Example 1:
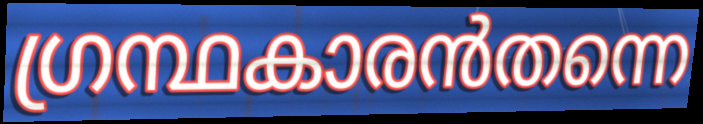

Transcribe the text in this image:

ഗ്രന്ഥകാരൻതന്നെ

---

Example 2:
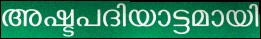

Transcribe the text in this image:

അഷ്ടപദിയാട്ടമായി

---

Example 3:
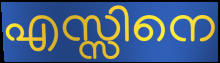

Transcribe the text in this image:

എസ്സിനെ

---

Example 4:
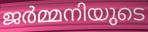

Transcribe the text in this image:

ജർമ്മനിയുടെ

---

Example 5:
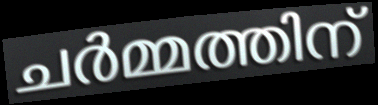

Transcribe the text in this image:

ചർമ്മത്തിന്